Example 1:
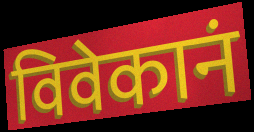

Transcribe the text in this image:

विवेकानं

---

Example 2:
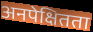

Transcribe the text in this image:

अनपेक्षितता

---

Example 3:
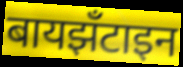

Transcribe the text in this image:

बायझँटाइन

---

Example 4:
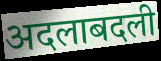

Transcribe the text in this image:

अदलाबदली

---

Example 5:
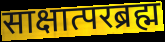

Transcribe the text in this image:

साक्षात्परब्रह्म